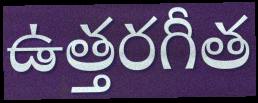
ఉత్తరగీత